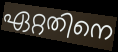
ഏറ്റതിനെ